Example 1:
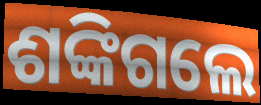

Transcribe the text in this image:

ଶଙ୍କିଗଲେ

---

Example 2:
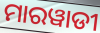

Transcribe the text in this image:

ମାରୱାଡୀ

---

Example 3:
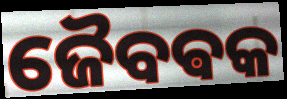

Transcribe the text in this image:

ଜୈବଵକ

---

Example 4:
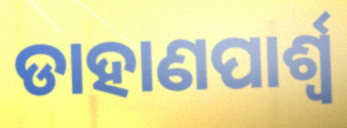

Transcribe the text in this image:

ଡାହାଣପାର୍ଶ୍ୱ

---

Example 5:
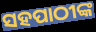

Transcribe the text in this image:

ସହପାଠୀଙ୍କ